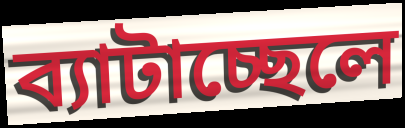
ব্যাটাচ্ছেলে